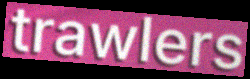
trawlers